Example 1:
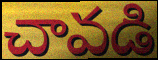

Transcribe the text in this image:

చావడి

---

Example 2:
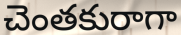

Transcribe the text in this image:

చెంతకురాగా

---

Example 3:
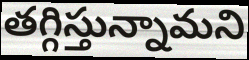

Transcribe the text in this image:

తగ్గిస్తున్నామని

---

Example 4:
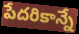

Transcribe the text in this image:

పేదరికాన్నే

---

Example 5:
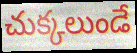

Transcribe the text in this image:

చుక్కలుండే